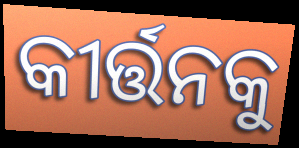
କୀର୍ତ୍ତନକୁ